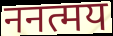
ननत्मय